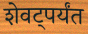
शेवट्पर्यंत